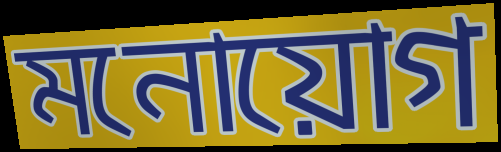
মনোয়োগ